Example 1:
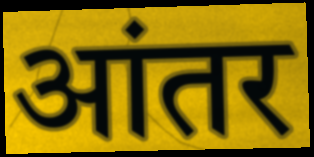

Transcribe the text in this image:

आंतर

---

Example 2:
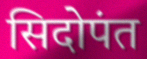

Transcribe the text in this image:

सिदोपंत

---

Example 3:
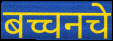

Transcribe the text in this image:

बच्चनचे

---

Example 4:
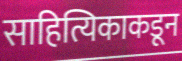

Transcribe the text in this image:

साहित्यिकाकडून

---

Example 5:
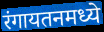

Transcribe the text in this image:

रंगायतनमध्ये